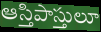
ఆస్తిపాస్తులూ